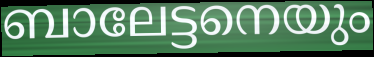
ബാലേട്ടനെയും